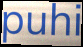
puhi